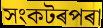
সংকটৰপৰা